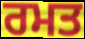
ਰਮਤ